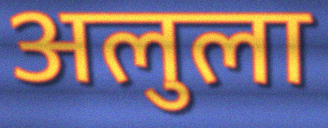
अलुला